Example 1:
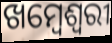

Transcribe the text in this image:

ଖମ୍ବେଶ୍ଵରୀ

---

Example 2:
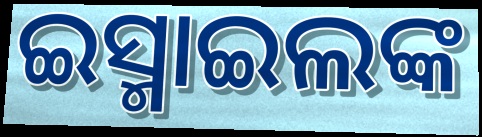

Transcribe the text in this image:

ଇସ୍ମାଇଲଙ୍କ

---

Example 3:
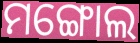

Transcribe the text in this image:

ମଙ୍ଗୋଲ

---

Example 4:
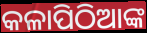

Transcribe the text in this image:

କଳାପିଠିଆଙ୍କ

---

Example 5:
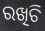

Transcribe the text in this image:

ରଖିଚି